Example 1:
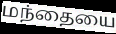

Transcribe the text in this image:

மந்தையை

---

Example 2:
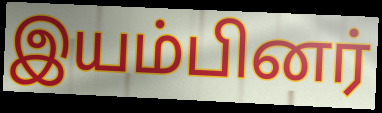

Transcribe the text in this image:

இயம்பினர்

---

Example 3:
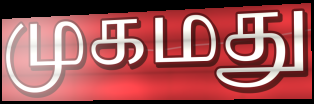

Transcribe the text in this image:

முகமது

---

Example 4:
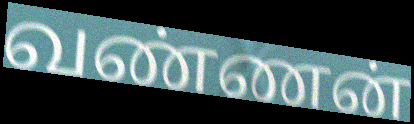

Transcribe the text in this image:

வண்ணன்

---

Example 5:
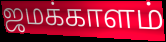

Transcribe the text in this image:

ஜமக்காளம்